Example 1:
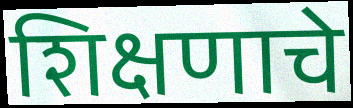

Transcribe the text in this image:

शिक्षणाचे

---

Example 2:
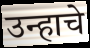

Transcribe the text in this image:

उन्हाचे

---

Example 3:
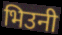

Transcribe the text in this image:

भिउनी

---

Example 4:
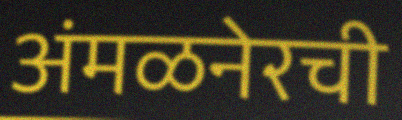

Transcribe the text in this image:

अंमळनेरची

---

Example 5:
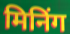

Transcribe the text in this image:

मिनिंग